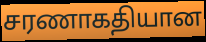
சரணாகதியான